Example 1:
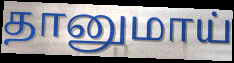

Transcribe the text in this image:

தானுமாய்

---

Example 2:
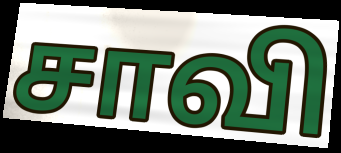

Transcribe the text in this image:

சாவி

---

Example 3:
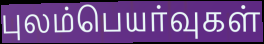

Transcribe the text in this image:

புலம்பெயர்வுகள்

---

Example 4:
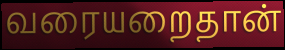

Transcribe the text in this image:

வரையறைதான்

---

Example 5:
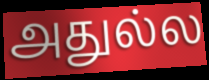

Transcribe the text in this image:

அதுல்ல